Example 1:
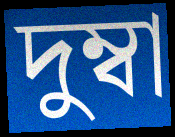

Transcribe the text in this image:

দুম্বা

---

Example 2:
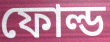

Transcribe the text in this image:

ফোল্ড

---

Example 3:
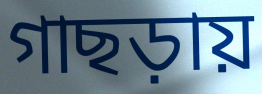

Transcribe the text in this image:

গাছড়ায়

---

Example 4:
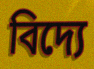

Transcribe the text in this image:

বিদ্যে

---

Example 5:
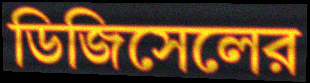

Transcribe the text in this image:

ডিজিসেলের